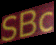
SBc